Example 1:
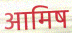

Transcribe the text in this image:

आमिष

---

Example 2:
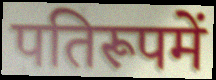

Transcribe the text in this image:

पतिरूपमें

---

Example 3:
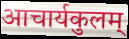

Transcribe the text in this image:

आचार्यकुलम्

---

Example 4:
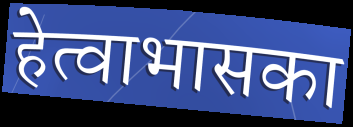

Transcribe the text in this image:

हेत्वाभासका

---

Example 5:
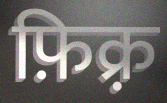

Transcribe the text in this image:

फ़िक़्र